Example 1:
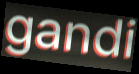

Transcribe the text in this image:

gandi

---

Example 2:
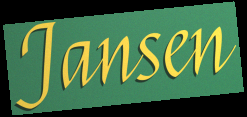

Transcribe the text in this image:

Jansen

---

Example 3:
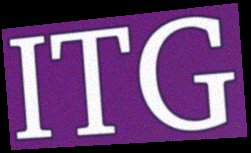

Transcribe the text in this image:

ITG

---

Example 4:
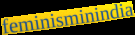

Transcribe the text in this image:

feminisminindia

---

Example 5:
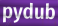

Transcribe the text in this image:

pydub